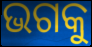
ଭଗକୁ